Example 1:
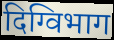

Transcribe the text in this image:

दिग्विभाग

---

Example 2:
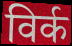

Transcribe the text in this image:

विर्क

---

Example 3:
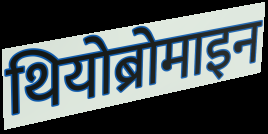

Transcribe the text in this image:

थियोब्रोमाइन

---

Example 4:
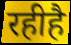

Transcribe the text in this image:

रहीहै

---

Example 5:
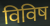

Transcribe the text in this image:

विविष